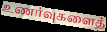
உணர்வுகளைத்